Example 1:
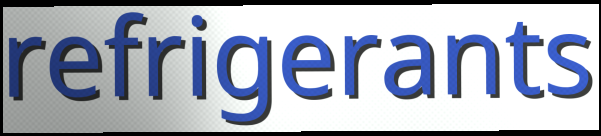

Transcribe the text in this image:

refrigerants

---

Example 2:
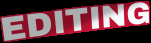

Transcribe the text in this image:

EDITING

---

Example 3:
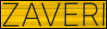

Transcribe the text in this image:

ZAVERI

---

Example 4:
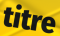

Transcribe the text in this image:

titre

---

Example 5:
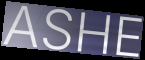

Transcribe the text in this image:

ASHE